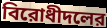
বিরোধীদলের